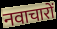
नवाचारों